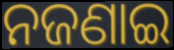
ନଜଣାଇ